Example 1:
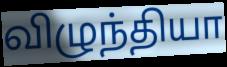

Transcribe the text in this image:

விழுந்தியா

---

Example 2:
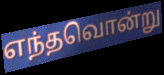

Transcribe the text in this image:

எந்தவொன்று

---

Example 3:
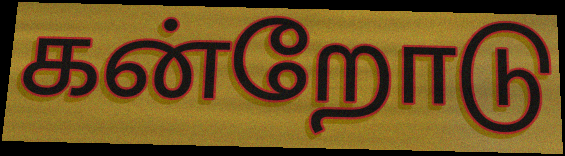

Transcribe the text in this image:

கன்றோடு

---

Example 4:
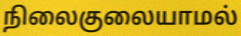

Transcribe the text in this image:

நிலைகுலையாமல்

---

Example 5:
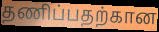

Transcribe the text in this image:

தணிப்பதற்கான